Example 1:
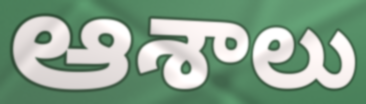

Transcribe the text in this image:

ఆశాలు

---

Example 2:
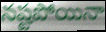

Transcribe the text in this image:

నష్టపోయినా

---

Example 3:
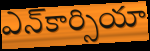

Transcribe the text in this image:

ఎన్‌కార్సియా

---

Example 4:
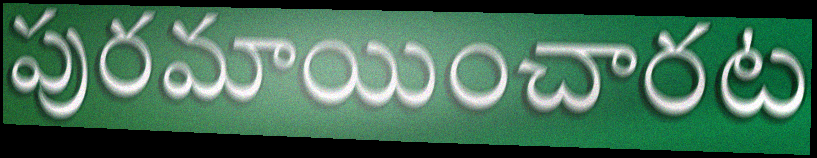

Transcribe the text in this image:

పురమాయించారట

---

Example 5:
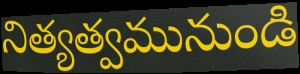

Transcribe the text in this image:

నిత్యత్వమునుండి